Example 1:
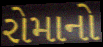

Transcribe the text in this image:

રોમાનો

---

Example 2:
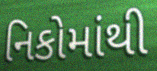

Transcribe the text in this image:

નિકોમાંથી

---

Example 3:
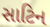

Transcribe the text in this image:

સાટિન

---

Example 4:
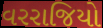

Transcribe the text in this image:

વરરાજિયો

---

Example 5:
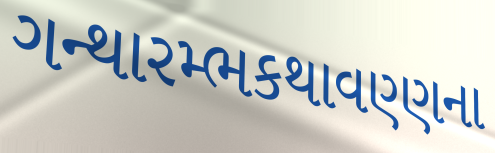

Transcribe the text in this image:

ગન્થારમ્ભકથાવણ્ણના